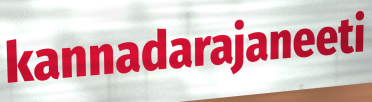
kannadarajaneeti